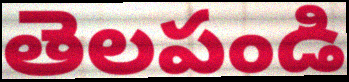
తెలపండి